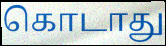
கொடாது